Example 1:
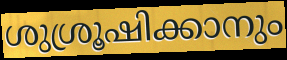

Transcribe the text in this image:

ശുശ്രൂഷിക്കാനും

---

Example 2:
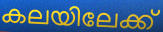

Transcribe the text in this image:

കലയിലേക്ക്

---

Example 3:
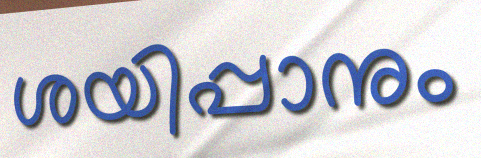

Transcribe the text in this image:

ശയിപ്പാനും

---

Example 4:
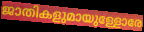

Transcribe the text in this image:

ജാതികളുമായുള്ളോരേ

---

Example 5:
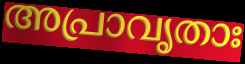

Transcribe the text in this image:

അപ്രാവൃതാഃ